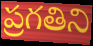
ప్రగతిని